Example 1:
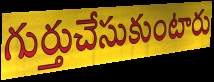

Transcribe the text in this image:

గుర్తుచేసుకుంటారు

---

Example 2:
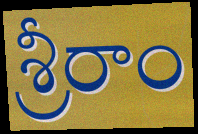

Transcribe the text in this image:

శ్రీరాం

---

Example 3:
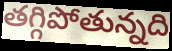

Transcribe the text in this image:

తగ్గిపోతున్నది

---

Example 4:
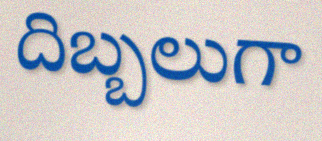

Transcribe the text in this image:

దిబ్బలుగా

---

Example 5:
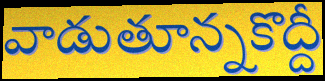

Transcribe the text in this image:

వాడుతూన్నకొద్దీ